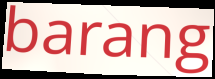
barang